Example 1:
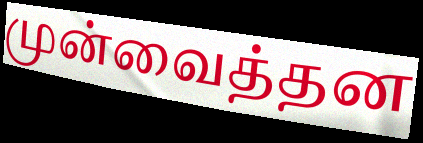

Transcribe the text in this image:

முன்வைத்தன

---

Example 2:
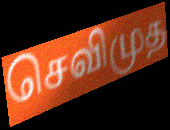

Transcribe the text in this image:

செவிமுத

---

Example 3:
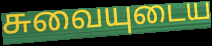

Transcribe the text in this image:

சுவையுடைய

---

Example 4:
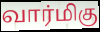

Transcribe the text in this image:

வார்மிகு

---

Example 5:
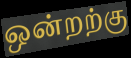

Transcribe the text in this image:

ஒன்றற்கு